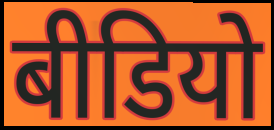
बीडियो